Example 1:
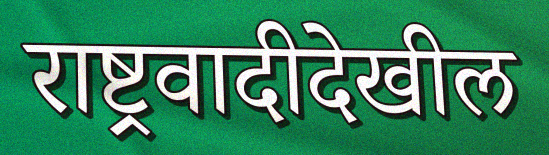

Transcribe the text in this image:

राष्ट्रवादीदेखील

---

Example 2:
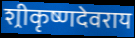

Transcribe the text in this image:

श्रीकृष्णदेवराय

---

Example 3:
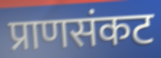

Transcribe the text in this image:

प्राणसंकट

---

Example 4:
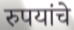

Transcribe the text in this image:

रुपयांचे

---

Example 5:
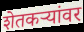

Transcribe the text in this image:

शेतकर्‍यांवर